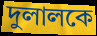
দুলালকে